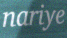
nariye